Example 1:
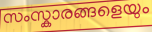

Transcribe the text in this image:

സംസ്കാരങ്ങളെയും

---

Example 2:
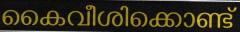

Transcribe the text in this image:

കൈവീശിക്കൊണ്ട്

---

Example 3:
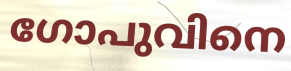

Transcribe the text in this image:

ഗോപുവിനെ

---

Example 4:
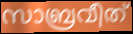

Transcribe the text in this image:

സാബ്രവീത്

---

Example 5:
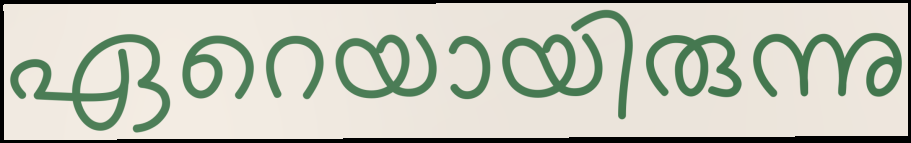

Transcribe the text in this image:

ഏറെയായിരുന്നു